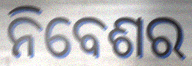
ନିବେଶର